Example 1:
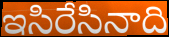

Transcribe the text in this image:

ఇసిరేసినాది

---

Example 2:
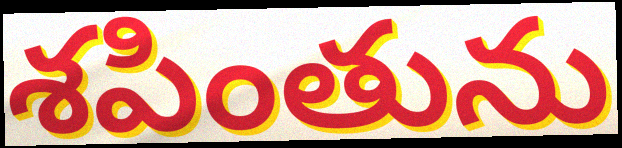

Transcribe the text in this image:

శపింతును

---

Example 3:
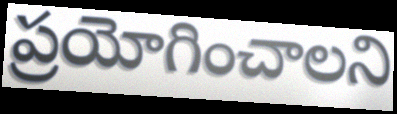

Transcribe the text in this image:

ప్రయోగించాలని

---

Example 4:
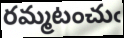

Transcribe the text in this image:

రమ్మటంచుఁ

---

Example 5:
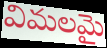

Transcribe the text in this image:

విమలమై